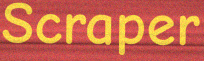
Scraper